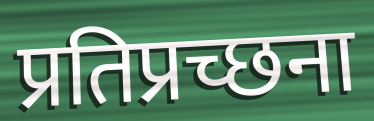
प्रतिप्रच्छना